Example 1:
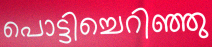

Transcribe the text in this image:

പൊട്ടിച്ചെറിഞ്ഞു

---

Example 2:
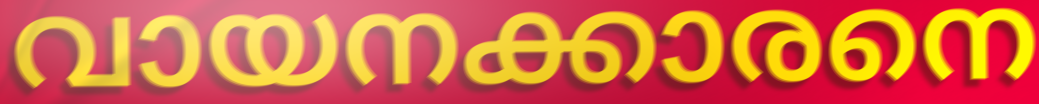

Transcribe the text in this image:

വായനക്കാരനെ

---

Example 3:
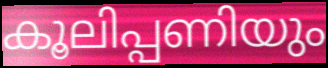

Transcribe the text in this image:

കൂലിപ്പണിയും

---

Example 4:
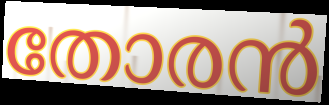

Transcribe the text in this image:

തോരൻ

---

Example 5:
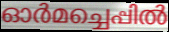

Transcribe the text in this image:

ഓർമച്ചെപ്പിൽ